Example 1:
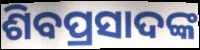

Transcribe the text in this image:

ଶିବପ୍ରସାଦଙ୍କ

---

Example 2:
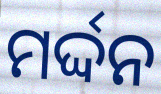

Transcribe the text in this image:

ମର୍ଦ୍ଦନ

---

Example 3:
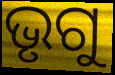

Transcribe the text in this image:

ଭୃଗୁ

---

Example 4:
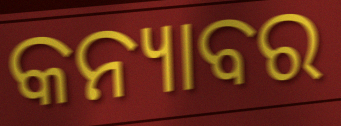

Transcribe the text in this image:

କନ୍ୟାବର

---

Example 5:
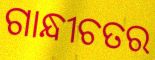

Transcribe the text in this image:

ଗାନ୍ଧୀଚତର